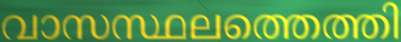
വാസസ്ഥലത്തെത്തി